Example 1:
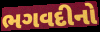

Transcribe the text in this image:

ભગવદીનો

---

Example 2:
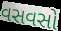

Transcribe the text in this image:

વસવસો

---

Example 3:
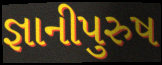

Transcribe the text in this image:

જ્ઞાનીપુરુષ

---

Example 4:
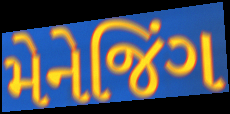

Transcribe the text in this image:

મેનેજિંગ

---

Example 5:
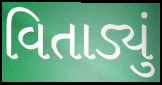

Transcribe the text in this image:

વિતાડ્યું